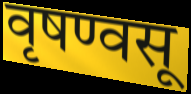
वृषण्वसू